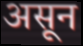
असून